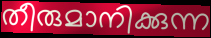
തീരുമാനിക്കുന്ന